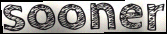
sooner